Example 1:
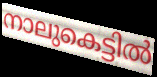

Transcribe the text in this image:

നാലുകെട്ടിൽ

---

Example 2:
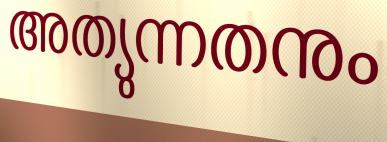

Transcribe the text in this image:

അത്യുന്നതനും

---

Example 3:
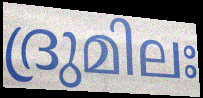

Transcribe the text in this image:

ദ്രുമിലഃ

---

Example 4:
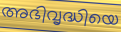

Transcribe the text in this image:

അഭിവൃദ്ധിയെ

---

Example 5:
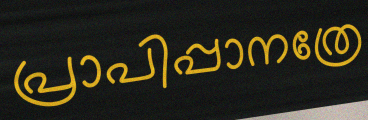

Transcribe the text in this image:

പ്രാപിപ്പാനത്രേ